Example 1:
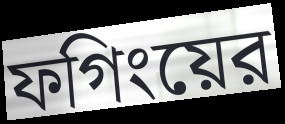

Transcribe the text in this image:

ফগিংয়ের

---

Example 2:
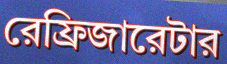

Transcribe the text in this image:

রেফ্রিজারেটার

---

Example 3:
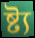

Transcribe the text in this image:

ষ্ট্য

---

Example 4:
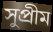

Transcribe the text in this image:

সুপ্রীম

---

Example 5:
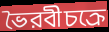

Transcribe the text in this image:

ভৈরবীচক্রে